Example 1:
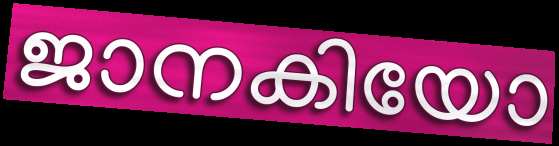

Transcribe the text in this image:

ജാനകിയോ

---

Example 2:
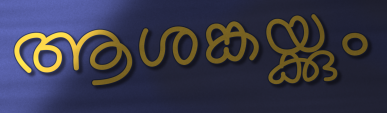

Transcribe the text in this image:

ആശങ്കയ്ക്കും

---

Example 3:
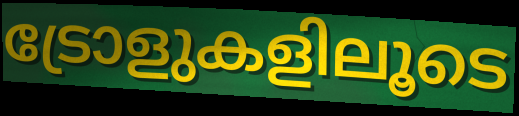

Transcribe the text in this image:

ട്രോളുകളിലൂടെ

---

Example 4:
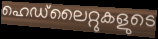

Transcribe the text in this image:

ഹെഡ്‌ലൈറ്റുകളുടെ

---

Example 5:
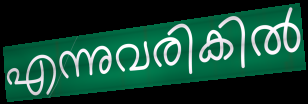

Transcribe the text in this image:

എന്നുവരികിൽ